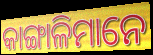
କାଙ୍ଗାଳିମାନେ